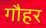
गौहर